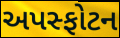
અપસ્ફોટન